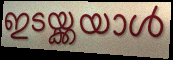
ഇടയ്ക്കയാൾ